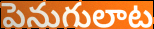
పెనుగులాట